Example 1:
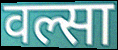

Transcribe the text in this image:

वल्सा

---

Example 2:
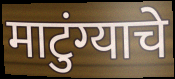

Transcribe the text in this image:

माटुंग्याचे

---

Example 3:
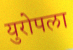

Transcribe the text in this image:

युरोपला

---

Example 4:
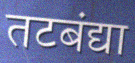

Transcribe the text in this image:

तटबंद्या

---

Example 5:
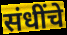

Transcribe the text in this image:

संधींचे